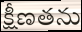
క్షీణతను